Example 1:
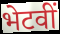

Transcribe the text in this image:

भेटवीं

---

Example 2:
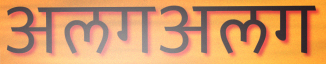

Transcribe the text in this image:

अलगअलग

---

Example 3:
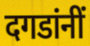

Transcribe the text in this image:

दगडांनीं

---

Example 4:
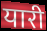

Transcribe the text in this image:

यारी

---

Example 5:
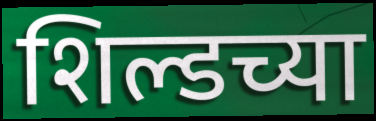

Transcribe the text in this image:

शिल्डच्या